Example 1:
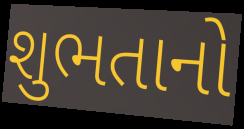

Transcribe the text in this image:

શુભતાનો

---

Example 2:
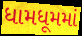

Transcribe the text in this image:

ધામધૂમમાં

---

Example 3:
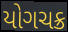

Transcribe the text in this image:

યોગચક્ર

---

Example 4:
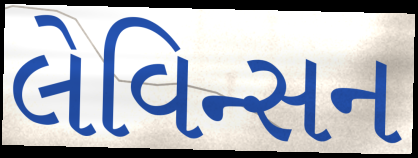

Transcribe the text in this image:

લેવિન્સન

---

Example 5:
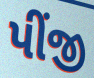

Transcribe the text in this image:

પીંજી